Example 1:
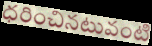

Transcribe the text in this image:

ధరించినటువంటి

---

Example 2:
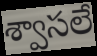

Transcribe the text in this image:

శ్వాసలే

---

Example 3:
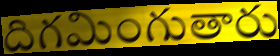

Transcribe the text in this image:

దిగమింగుతారు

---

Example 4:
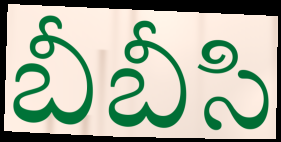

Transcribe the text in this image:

బీబీసి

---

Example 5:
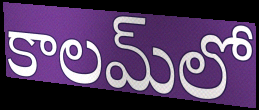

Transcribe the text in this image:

కాలమ్‍లో